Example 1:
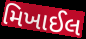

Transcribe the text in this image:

મિખાઈલ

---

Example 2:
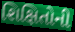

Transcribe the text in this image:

શિક્ષિતોની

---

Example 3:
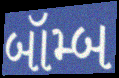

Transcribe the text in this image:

બૉમ્બ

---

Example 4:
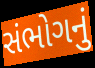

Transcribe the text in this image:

સંભોગનું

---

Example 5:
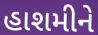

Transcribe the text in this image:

હાશમીને